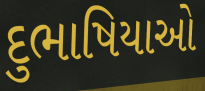
દુભાષિયાઓ